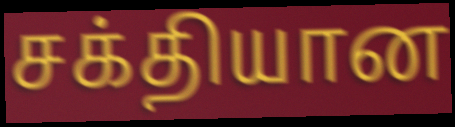
சக்தியான